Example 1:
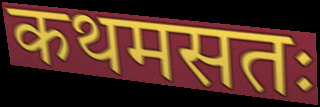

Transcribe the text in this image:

कथमसतः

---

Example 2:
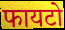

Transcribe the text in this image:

फायटो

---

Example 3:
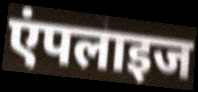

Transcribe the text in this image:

एंपलाइज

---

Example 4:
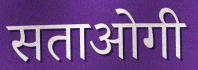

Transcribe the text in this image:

सताओगी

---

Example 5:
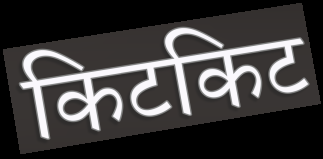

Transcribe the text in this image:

किटकिट